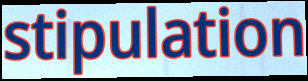
stipulation